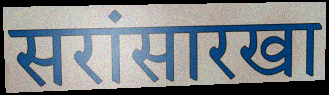
सरांसारखा